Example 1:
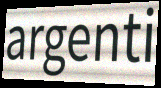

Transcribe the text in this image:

argenti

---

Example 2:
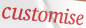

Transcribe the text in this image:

customise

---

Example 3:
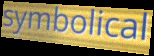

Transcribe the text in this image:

symbolical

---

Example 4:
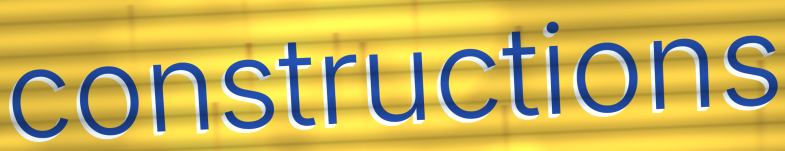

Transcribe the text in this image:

constructions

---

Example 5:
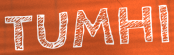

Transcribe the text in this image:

TUMHI